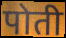
पोती